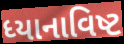
ધ્યાનાવિષ્ટ